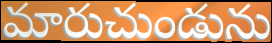
మారుచుండును